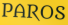
PAROS